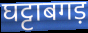
घट्टाबगड़